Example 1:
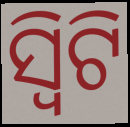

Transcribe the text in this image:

ସ୍ୱିଟି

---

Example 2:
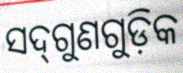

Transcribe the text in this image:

ସଦ୍‌ଗୁଣଗୁଡ଼ିକ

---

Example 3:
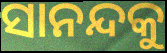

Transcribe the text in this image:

ସାନନ୍ଦକୁ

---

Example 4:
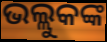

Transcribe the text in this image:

ଭଲ୍ଲୁକଙ୍କ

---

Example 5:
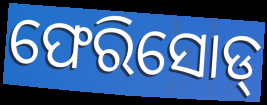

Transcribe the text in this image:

ଫେରିସୋଡ୍